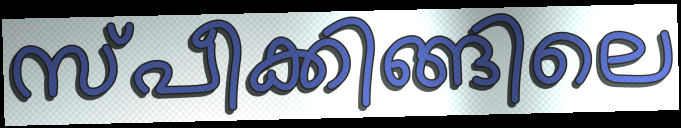
സ്പീക്കിങ്ങിലെ